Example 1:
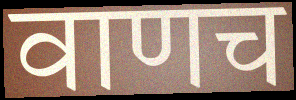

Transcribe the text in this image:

वाणच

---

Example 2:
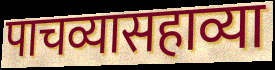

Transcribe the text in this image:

पाचव्यासहाव्या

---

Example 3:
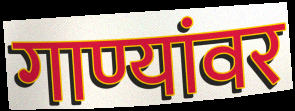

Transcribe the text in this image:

गाण्यांवर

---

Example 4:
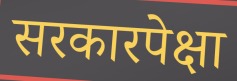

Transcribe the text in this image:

सरकारपेक्षा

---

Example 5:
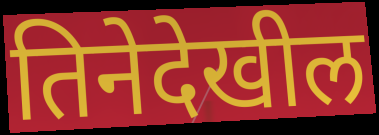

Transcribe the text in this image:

तिनेदेखील